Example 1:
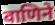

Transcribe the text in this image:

वाणिने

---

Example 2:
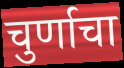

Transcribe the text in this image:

चुर्णाचा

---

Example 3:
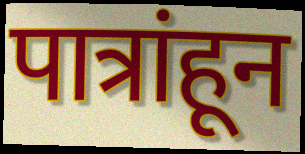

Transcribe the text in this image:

पात्रांहून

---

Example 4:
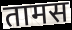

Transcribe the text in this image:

तामस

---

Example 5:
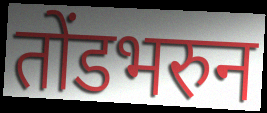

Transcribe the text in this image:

तोंडभरुन